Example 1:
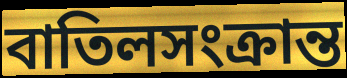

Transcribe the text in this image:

বাতিলসংক্রান্ত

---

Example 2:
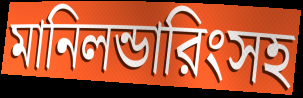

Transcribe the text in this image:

মানিলন্ডারিংসহ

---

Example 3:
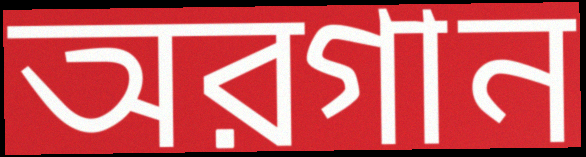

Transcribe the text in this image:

অরগান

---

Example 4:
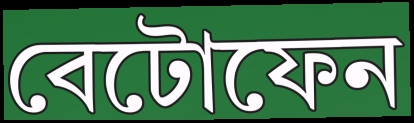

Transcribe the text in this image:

বেটোফেন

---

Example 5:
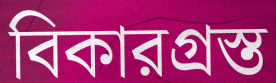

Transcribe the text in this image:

বিকারগ্রস্ত